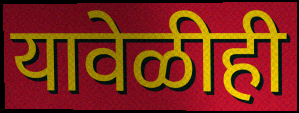
यावेळीही